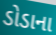
ડોડાના